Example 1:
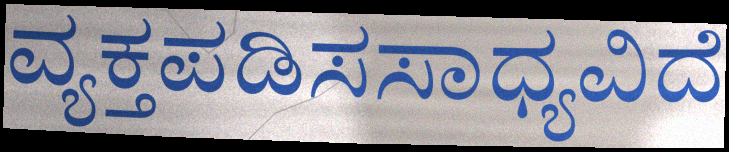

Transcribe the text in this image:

ವ್ಯಕ್ತಪಡಿಸಸಾಧ್ಯವಿದೆ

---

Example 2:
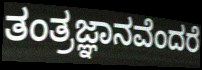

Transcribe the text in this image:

ತಂತ್ರಜ್ಞಾನವೆಂದರೆ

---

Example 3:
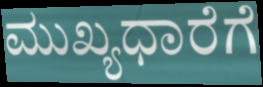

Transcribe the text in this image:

ಮುಖ್ಯಧಾರೆಗೆ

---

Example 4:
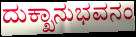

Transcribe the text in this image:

ದುಕ್ಖಾನುಭವನಂ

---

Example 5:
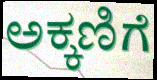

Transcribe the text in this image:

ಅಕ್ಕಣಿಗೆ